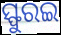
ସ୍ଫୁରଇ